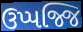
ઉપ્પજ્જિ